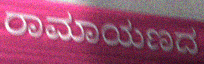
ರಾಮಾಯಣದ